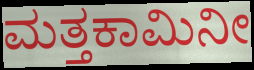
ಮತ್ತಕಾಮಿನೀ